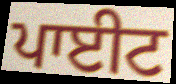
ਪਾਈਟ